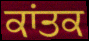
ਕਾਂਤਕ